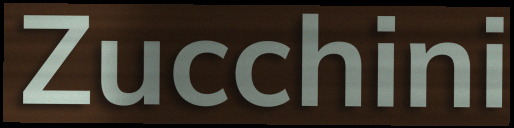
Zucchini